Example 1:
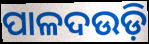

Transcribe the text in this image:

ପାଳଦଉଡ଼ି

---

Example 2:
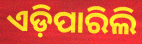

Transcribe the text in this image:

ଏଡ଼ିପାରିଲି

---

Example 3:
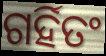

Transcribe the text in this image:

ଗର୍ହିତଂ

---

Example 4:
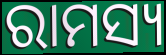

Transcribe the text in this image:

ରାମସ୍ୟ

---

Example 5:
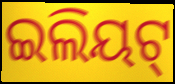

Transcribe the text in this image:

ଇଲିୟଟ୍